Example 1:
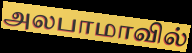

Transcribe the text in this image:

அலபாமாவில்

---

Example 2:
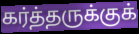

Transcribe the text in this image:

கர்த்தருக்குக்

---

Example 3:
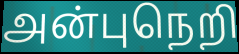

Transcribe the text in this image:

அன்புநெறி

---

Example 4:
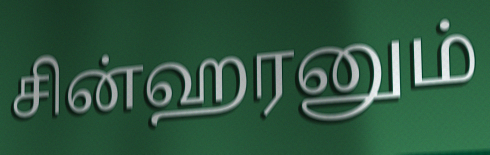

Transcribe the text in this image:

சின்ஹரனும்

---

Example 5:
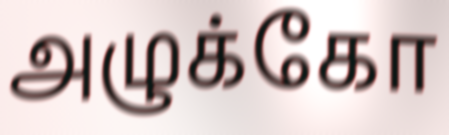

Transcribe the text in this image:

அழுக்கோ